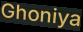
Ghoniya